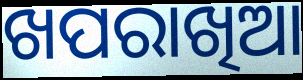
ଖପରାଖିଆ